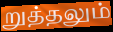
றுத்தலும்